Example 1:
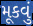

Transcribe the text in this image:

મૂકવું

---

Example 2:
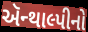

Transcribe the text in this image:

ઍન્થાલ્પીનો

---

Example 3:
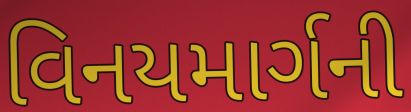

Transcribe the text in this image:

વિનયમાર્ગની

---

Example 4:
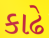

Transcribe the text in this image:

કાઢે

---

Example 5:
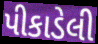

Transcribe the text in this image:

પીકાડેલી